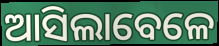
ଆସିଲାବେଳେ